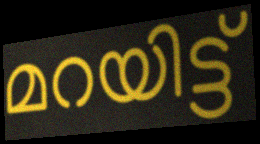
മറയിട്ട്